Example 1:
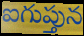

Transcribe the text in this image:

ఐగుప్తున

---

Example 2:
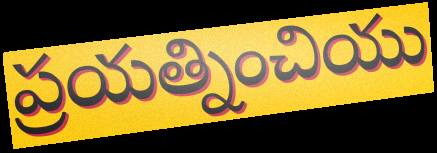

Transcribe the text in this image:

ప్రయత్నించియు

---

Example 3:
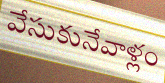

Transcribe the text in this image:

వేసుకునేవాళ్లం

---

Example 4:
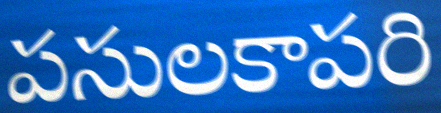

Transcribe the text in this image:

పసులకాపరి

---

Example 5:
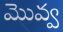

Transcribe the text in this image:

మొవ్వ